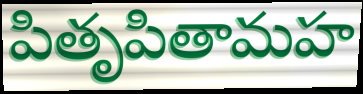
పితృపితామహ